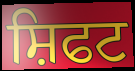
ਸ਼ਿਫਟ